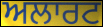
ਅਲਾਰਟ